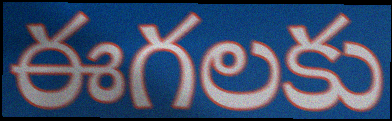
ఈగలకు